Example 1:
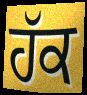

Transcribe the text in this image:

ਹੱਕ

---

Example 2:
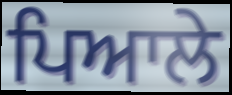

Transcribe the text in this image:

ਪਿਆਲੇ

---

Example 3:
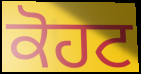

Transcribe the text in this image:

ਕੋਹਟ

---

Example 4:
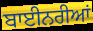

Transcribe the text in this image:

ਬਾਈਨਰੀਆਂ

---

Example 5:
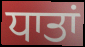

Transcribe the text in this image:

ਧਾਤਾਂ